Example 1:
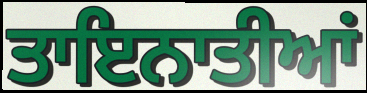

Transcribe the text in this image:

ਤਾਇਨਾਤੀਆਂ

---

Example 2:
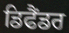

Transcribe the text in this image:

ਡਿਫੈਂਡਰ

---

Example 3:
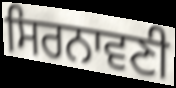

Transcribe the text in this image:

ਸਿਰਨਾਵਣੀ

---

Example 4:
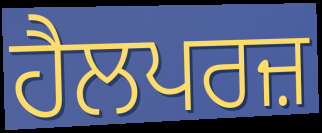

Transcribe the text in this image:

ਹੈਲਪਰਜ਼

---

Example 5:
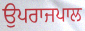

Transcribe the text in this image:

ਉਪਰਾਜਪਾਲ